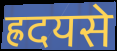
ह्रदयसे